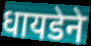
धायडेने